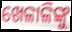
ଖେଳାଳିଙ୍କୁ